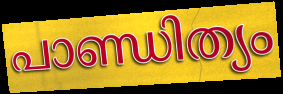
പാണ്ഡിത്യം